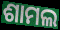
ଶାମଲ